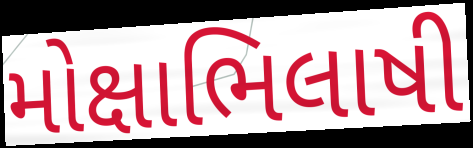
મોક્ષાભિલાષી